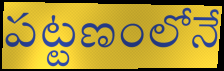
పట్టణంలోనే